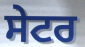
ਸੇਟਰ